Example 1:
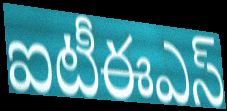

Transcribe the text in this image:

ఐటీఈఎస్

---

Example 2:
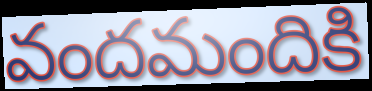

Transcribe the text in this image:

వందమందికి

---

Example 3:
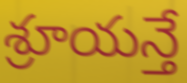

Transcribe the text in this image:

శ్రూయన్తే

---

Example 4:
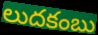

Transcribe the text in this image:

లుదకంబు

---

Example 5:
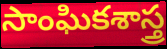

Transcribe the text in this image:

సాంఘికశాస్త్ర